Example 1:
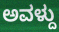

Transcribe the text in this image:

ಅವಳ್ದು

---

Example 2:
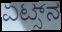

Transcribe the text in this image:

ಏಟ್ಸ್‌ನ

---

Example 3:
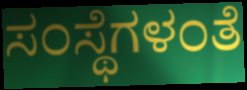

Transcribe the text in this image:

ಸಂಸ್ಥೆಗಳಂತೆ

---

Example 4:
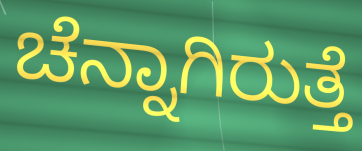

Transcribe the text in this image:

ಚೆನ್ನಾಗಿರುತ್ತೆ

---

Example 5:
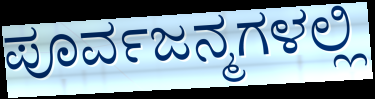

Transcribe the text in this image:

ಪೂರ್ವಜನ್ಮಗಳಲ್ಲಿ